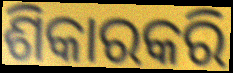
ଶିକାରକରି